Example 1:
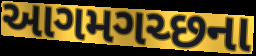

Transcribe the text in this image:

આગમગચ્છના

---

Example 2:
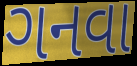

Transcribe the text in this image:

ગનવા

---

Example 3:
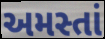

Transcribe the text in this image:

અમસ્તાં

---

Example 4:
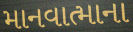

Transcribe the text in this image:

માનવાત્માના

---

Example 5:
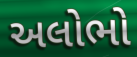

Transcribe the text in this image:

અલોભો